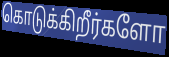
கொடுக்கிறீர்களோ